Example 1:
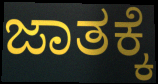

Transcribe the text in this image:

ಜಾತಕ್ಕೆ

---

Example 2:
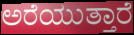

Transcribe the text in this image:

ಅರೆಯುತ್ತಾರೆ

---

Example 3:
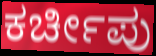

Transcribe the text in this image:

ಕರ್ಚೀಪು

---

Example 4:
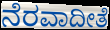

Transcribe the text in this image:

ನೆರವಾದೀತೆ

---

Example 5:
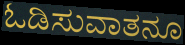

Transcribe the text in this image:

ಓಡಿಸುವಾತನೂ